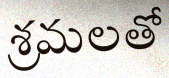
శ్రమలతో